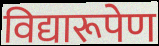
विद्यारूपेण